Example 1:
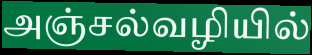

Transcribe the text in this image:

அஞ்சல்வழியில்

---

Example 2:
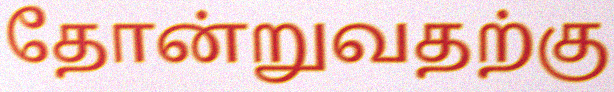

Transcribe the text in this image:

தோன்றுவதற்கு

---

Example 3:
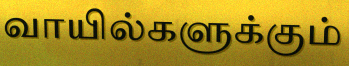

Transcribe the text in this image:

வாயில்களுக்கும்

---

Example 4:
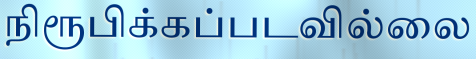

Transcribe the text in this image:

நிரூபிக்கப்படவில்லை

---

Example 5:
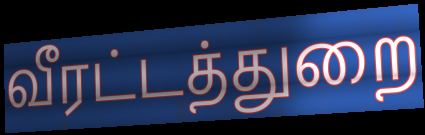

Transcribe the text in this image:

வீரட்டத்துறை